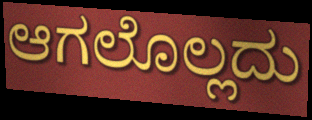
ಆಗಲೊಲ್ಲದು